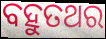
ବହୁତଥର